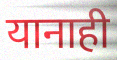
यानाही